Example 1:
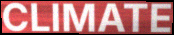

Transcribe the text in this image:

CLIMATE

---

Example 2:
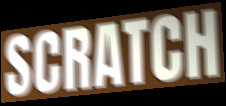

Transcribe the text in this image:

SCRATCH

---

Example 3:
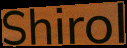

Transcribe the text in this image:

Shirol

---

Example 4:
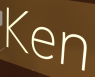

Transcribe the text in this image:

Ken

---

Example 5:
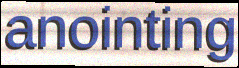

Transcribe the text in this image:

anointing